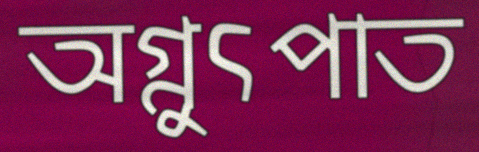
অগ্নুৎপাত